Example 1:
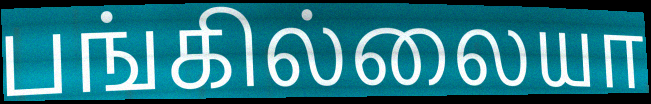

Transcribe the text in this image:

பங்கில்லையா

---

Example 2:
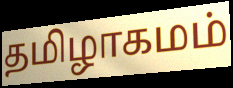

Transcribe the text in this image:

தமிழாகமம்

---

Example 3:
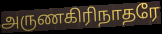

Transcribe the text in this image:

அருணகிரிநாதரே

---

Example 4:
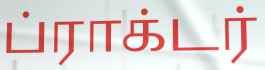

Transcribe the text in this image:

ப்ராக்டர்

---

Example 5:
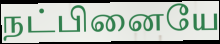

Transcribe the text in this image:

நட்பினையே